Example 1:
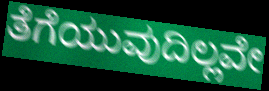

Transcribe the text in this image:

ತೆಗೆಯುವುದಿಲ್ಲವೇ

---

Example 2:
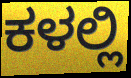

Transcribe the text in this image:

ಕಳಲ್ಲಿ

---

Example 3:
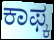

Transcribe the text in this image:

ಕಾಫ್ಕ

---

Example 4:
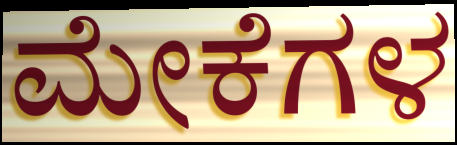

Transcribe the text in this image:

ಮೇಕೆಗಳ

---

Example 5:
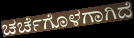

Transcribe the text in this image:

ಚರ್ಚೆಗೊಳಗಾಗಿದೆ